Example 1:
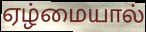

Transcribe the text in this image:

ஏழ்மையால்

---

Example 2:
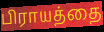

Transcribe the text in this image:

பிராயத்தை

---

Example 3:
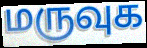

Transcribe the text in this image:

மருவுக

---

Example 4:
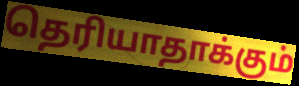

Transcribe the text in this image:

தெரியாதாக்கும்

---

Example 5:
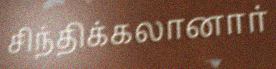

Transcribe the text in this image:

சிந்திக்கலானார்